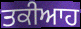
ਤਕੀਆਹ